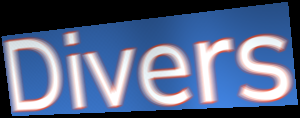
Divers